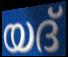
യദ്